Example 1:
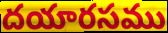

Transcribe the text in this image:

దయారసము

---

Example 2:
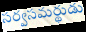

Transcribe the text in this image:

సర్వసమర్థుడు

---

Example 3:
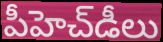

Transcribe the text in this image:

పీహెచ్‌డీలు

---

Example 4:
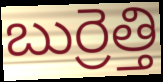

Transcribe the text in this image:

బుర్రెత్తి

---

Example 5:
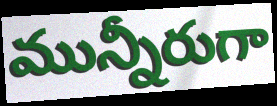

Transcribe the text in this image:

మున్నీరుగా